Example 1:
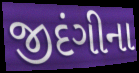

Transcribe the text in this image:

જીદંગીના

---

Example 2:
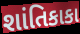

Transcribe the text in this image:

શાંતિકાકા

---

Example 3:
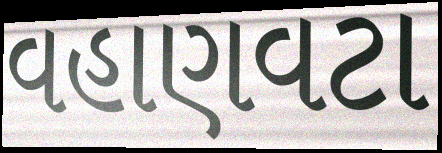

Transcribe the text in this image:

વહાણવટા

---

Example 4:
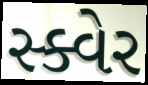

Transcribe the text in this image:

સ્ક્વેર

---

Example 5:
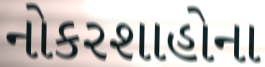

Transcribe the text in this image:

નોકરશાહોના